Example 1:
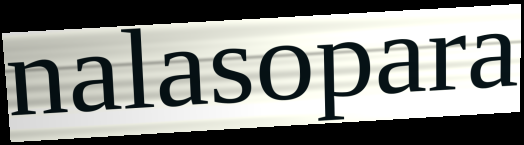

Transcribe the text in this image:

nalasopara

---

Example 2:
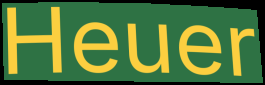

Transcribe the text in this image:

Heuer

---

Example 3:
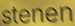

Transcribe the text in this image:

stenen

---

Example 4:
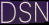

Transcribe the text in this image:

DSN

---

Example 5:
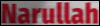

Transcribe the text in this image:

Narullah